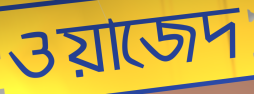
ওয়াজেদ